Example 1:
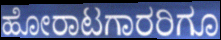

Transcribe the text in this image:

ಹೋರಾಟಗಾರರಿಗೂ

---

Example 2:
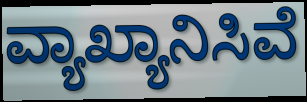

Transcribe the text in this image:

ವ್ಯಾಖ್ಯಾನಿಸಿವೆ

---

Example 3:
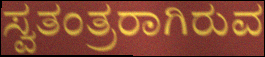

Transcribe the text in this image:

ಸ್ವತಂತ್ರರಾಗಿರುವ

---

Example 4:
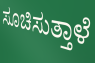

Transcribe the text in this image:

ಸೂಚಿಸುತ್ತಾಳೆ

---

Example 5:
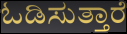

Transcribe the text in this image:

ಓಡಿಸುತ್ತಾರೆ